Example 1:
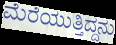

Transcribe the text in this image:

ಮೆರೆಯುತ್ತಿದ್ದನು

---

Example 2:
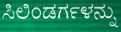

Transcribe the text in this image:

ಸಿಲಿಂಡರ್ಗಳನ್ನು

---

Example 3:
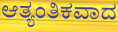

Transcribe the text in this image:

ಆತ್ಯಂತಿಕವಾದ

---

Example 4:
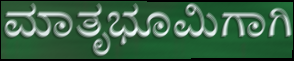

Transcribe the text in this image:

ಮಾತೃಭೂಮಿಗಾಗಿ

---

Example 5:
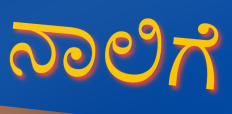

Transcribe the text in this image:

ನಾಲಿಗೆ